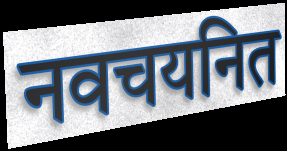
नवचयनित